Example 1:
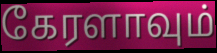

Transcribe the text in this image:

கேரளாவும்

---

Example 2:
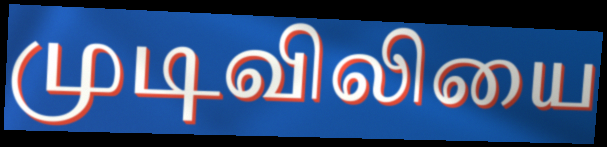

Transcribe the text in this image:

முடிவிலியை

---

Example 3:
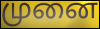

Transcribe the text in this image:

முனை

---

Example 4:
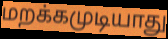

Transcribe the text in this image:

மறக்கமுடியாது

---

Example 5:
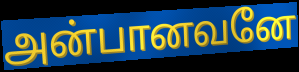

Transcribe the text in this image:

அன்பானவனே